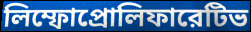
লিম্ফোপ্রোলিফারেটিভ